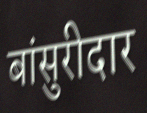
बांसुरीदार